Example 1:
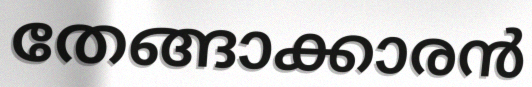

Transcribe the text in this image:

തേങ്ങാക്കാരൻ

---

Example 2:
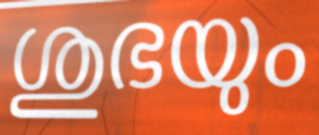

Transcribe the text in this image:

ശുഭയും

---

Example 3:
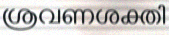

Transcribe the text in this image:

ശ്രവണശക്തി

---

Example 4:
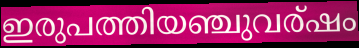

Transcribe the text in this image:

ഇരുപത്തിയഞ്ചുവര്ഷം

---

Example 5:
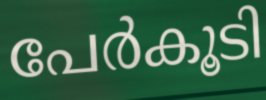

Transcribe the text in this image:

പേർകൂടി